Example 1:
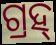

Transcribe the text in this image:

ଗ୍ରହ୍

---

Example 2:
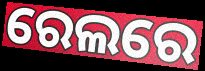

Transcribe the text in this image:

ରେଲରେ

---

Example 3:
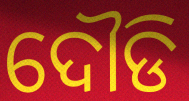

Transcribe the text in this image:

ଦୌଡି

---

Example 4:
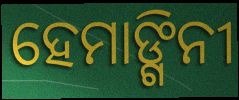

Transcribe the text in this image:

ହେମାଙ୍ଗିନୀ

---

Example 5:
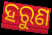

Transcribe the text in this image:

ହରୁଣ